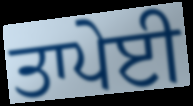
ਤਾਪੇਈ